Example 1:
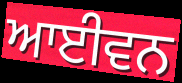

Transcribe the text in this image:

ਆਈਵਨ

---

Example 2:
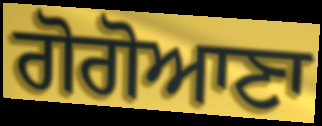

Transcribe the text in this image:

ਗੋਗੋਆਣਾ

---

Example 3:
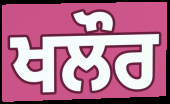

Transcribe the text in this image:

ਖਲੌਰ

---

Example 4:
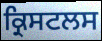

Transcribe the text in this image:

ਕ੍ਰਿਸਟਲਸ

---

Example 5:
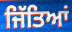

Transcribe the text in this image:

ਜਿੱਤਿਆਂ